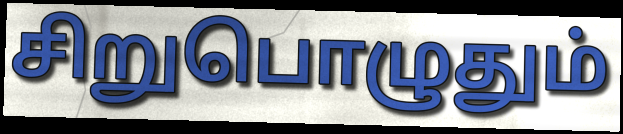
சிறுபொழுதும்